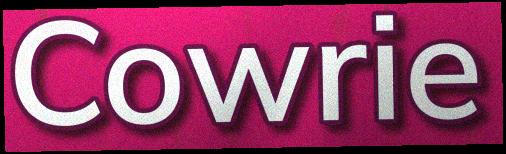
Cowrie